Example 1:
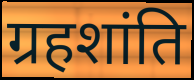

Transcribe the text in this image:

ग्रहशांति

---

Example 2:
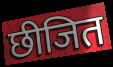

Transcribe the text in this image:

छीजित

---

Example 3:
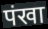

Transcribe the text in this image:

पंखा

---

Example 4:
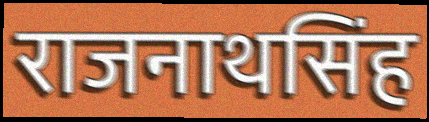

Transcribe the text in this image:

राजनाथसिंह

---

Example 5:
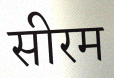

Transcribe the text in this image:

सीरम